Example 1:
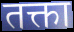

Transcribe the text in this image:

तक्ता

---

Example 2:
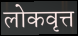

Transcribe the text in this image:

लोकवृत्त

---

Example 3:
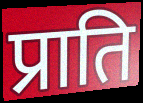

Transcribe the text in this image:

प्राति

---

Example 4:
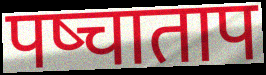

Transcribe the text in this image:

पष्चाताप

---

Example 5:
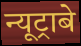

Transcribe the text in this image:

न्यूट्राबे